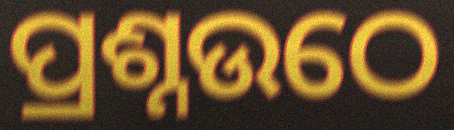
ପ୍ରଶ୍ନଉଠେ